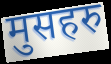
मुसहरु